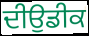
ਦੀਉਡੀਕ